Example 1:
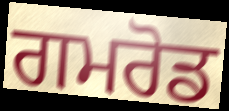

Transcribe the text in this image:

ਗਮਰੋਡ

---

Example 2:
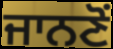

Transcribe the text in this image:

ਜਾਨਣੋਂ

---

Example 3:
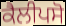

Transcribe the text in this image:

ਕੈਲੀਪਸੋ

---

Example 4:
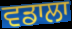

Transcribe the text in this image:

ਵਡਾਲਾ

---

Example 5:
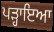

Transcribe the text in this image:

ਪੜ੍ਹਾਇਆ